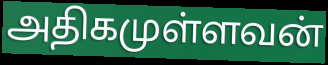
அதிகமுள்ளவன்